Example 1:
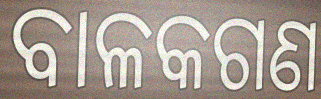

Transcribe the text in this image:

ବାଳକଗଣ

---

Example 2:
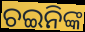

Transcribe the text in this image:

ଚଇନିଙ୍କ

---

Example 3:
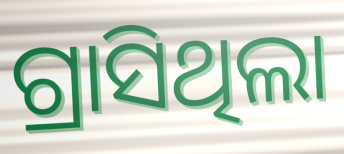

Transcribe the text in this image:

ଗ୍ରାସିଥିଲା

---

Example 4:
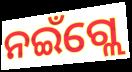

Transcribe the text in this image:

ନଇଁଗ୍ଲେ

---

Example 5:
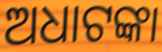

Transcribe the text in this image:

ଅଧାଟଙ୍କା